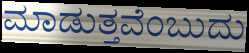
ಮಾಡುತ್ತವೆಂಬುದು